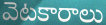
వెటకారాలు